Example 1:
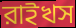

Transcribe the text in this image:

রাইখস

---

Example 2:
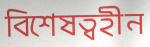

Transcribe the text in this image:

বিশেষত্বহীন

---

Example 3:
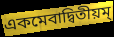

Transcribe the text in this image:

একমেবাদ্বিতীয়ম্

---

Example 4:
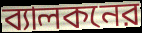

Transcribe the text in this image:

ব্যালকনের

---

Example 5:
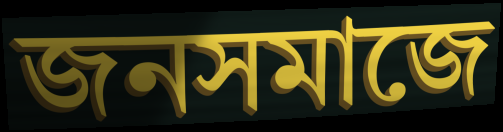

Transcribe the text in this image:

জনসমাজে